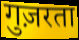
गुज़रता